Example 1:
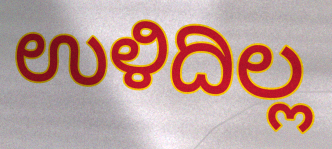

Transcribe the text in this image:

ಉಳಿದಿಲ್ಲ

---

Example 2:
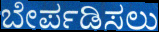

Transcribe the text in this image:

ಬೇರ್ಪಡಿಸಲು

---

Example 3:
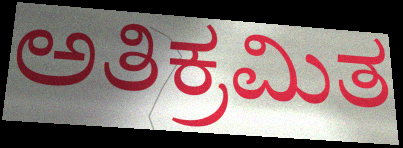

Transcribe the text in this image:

ಅತಿಕ್ರಮಿತ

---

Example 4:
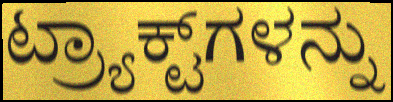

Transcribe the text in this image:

ಟ್ರ್ಯಾಕ್ಟ್‌ಗಳನ್ನು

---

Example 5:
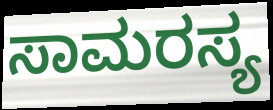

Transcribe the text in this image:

ಸಾಮರಸ್ಯ